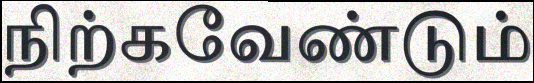
நிற்கவேண்டும்